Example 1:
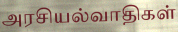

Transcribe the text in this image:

அரசியல்வாதிகள்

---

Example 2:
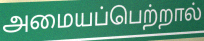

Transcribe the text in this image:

அமையப்பெற்றால்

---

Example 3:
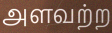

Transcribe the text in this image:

அளவற்ற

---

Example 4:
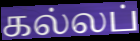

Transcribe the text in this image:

கல்லப்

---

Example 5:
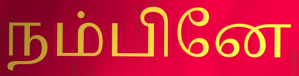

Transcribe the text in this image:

நம்பினே